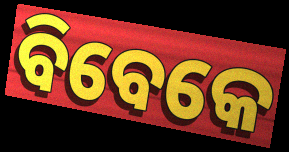
ବିବେକେ